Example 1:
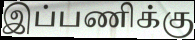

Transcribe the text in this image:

இப்பணிக்கு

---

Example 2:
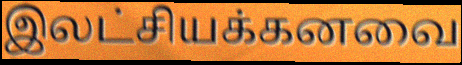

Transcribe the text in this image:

இலட்சியக்கனவை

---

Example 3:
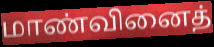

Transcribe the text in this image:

மாண்வினைத்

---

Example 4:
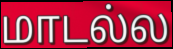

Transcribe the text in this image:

மாடல்ல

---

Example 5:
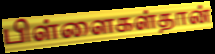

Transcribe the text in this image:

பிள்ளைகள்தான்